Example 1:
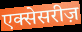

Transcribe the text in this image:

एक्सेसरीज़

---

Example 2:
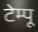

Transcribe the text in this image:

टेम्पू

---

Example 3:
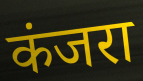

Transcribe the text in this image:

कंजरा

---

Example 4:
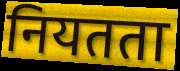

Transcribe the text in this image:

नियतता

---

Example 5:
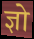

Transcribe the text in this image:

ज्ञो